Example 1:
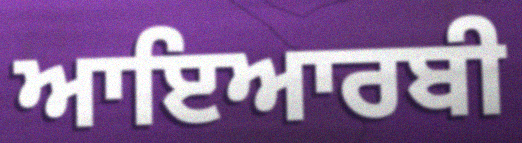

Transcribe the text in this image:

ਆਇਆਰਬੀ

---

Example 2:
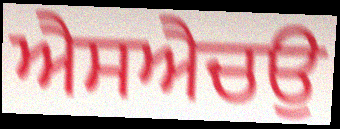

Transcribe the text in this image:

ਐਸਐਚਉ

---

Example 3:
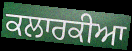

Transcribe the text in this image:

ਕਲਾਰਕੀਆ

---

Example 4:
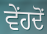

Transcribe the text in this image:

ਵੇਂਹਦੋਂ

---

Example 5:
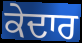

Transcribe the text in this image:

ਕੇਦਾਰ